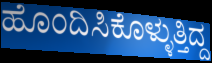
ಹೊಂದಿಸಿಕೊಳ್ಳುತ್ತಿದ್ದ